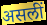
असलीं